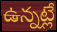
ఉన్నట్లే